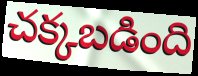
చక్కబడింది